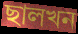
ছালখন